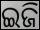
ଇଜି